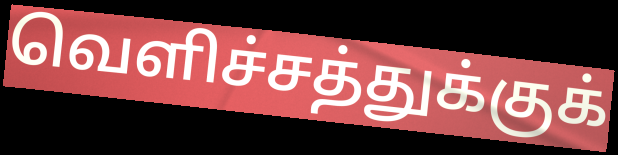
வெளிச்சத்துக்குக்